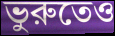
ভুরুতেও